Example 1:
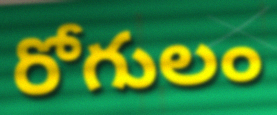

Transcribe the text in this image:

రోగులం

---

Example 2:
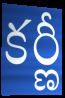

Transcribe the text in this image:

కర్ణీ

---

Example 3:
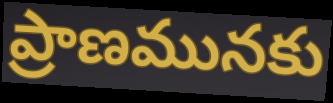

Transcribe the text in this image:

ప్రాణమునకు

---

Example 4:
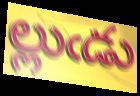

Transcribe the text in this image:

ల్లుఁడు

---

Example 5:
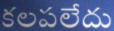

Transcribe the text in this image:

కలపలేదు